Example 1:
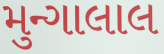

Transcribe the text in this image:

મુન્ગાલાલ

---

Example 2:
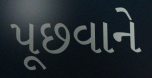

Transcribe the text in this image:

પૂછવાને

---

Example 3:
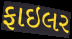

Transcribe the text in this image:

ફાઇલર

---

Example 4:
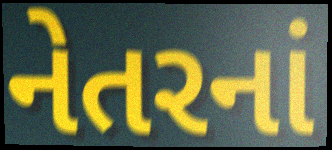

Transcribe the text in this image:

નેતરનાં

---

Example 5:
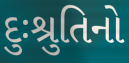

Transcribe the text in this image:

દુઃશ્રુતિનો